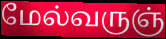
மேல்வருஞ்